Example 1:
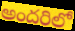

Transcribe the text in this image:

అందరిలో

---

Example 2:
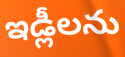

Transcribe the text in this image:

ఇడ్లీలను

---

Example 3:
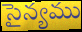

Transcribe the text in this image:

సైన్యము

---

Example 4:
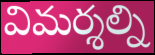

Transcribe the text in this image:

విమర్శల్ని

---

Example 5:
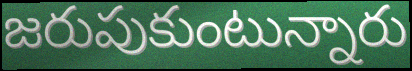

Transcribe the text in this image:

జరుపుకుంటున్నారు